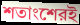
শতাংশেরই